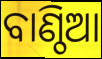
ବାଣ୍ଠିଆ